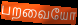
பறவையோ